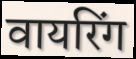
वायरिंग